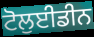
ਟੋਲੁਈਡੀਨ